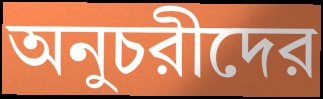
অনুচরীদের